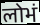
लोभं